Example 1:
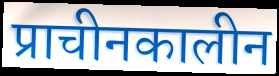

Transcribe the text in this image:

प्राचीनकालीन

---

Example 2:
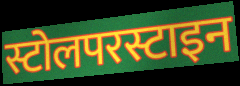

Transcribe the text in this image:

स्टोलपरस्टाइन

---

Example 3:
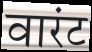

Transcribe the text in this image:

वारंट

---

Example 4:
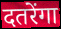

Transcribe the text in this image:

दतरेंगा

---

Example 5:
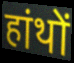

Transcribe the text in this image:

हांथों